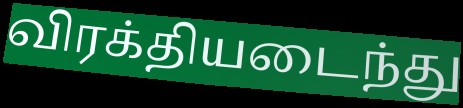
விரக்தியடைந்து